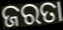
ଜରତା